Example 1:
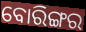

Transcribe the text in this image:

ବୋରିଙ୍ଗର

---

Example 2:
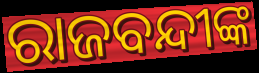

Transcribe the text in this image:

ରାଜବନ୍ଦୀଙ୍କ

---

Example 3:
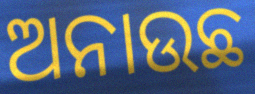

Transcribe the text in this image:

ଅନାଉଛ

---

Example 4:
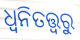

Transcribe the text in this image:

ଧ୍ୱନିତତ୍ତ୍ୱରୁ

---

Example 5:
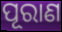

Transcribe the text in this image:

ପୂରାଣ